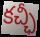
కచ్ఛీ